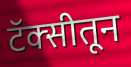
टॅक्‍सीतून